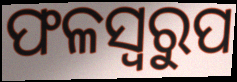
ଫଳସ୍ୱରୁପ